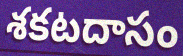
శకటదాసం